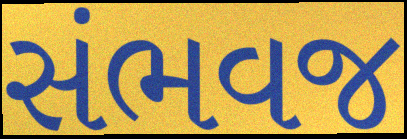
સંભવજ